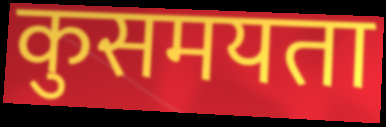
कुसमयता